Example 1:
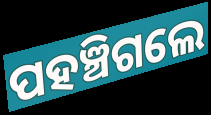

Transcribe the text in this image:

ପହଞ୍ଚିଗଲେ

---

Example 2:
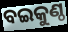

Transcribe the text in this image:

ବଇକୁଣ୍ଠ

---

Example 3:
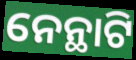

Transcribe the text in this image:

ନେନ୍ଥାଟି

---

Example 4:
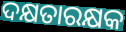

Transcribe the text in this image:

ଦକ୍ଷତାରକ୍ଷକ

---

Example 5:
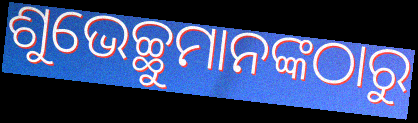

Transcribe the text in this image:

ଶୁଭେଚ୍ଛୁମାନଙ୍କଠାରୁ